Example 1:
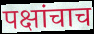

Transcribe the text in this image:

पक्षांचाच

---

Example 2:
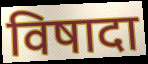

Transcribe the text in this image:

विषादा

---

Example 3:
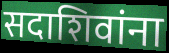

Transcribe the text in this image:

सदाशिवांना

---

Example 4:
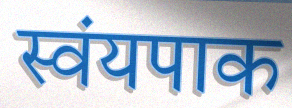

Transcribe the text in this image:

स्वंयपाक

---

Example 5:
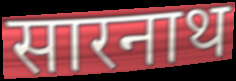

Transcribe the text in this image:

सारनाथ